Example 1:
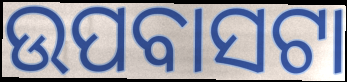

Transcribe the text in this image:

ଉପବାସଟା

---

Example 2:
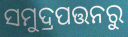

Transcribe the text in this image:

ସମୁଦ୍ରପତ୍ତନରୁ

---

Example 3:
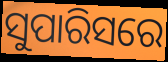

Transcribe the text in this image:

ସୁପାରିସରେ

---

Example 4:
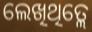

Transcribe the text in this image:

ଲେଖିଥିତ୍ଲେ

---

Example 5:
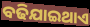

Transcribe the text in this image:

ବଢିଯାଇଥାଏ